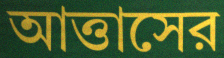
আত্তাসের